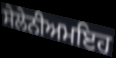
ਸੇਲੇਨੀਅਮਇਹ